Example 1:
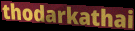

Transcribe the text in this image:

thodarkathai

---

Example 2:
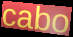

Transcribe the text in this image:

cabo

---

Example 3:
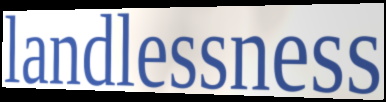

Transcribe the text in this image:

landlessness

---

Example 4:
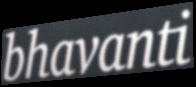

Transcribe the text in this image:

bhavanti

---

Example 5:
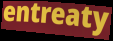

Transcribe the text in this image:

entreaty